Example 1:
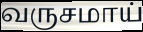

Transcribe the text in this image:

வருசமாய்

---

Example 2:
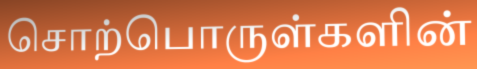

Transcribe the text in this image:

சொற்பொருள்களின்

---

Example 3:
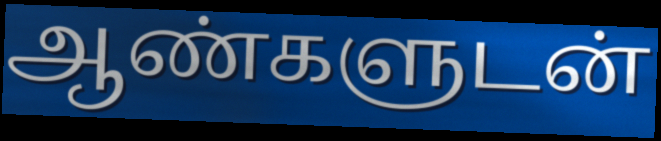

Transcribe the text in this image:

ஆண்களுடன்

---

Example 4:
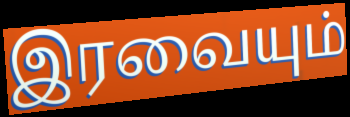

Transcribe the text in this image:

இரவையும்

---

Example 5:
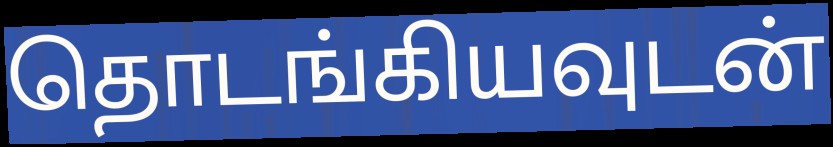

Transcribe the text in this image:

தொடங்கியவுடன்